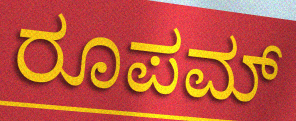
ರೂಪಮ್